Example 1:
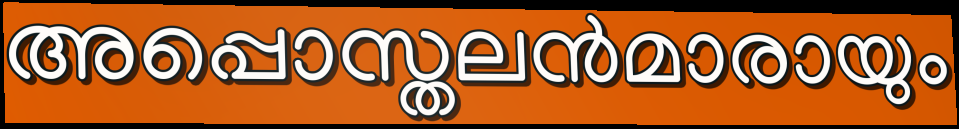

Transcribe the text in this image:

അപ്പൊസ്തലൻമാരായും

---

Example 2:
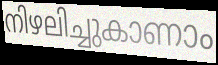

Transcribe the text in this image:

നിഴലിച്ചുകാണാം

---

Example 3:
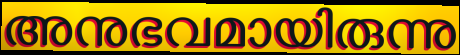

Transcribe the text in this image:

അനുഭവമായിരുന്നു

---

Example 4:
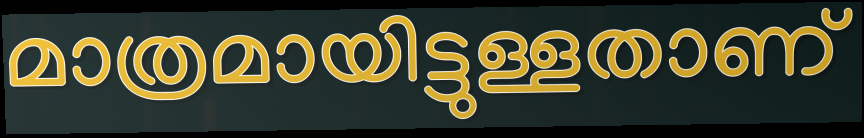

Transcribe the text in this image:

മാത്രമായിട്ടുള്ളതാണ്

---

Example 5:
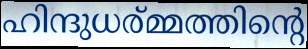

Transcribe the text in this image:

ഹിന്ദുധര്മ്മത്തിന്റെ